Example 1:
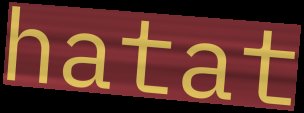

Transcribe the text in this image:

hatat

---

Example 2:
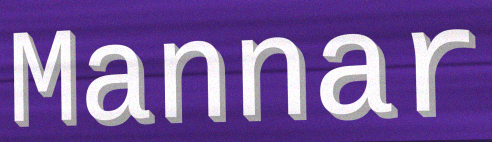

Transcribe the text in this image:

Mannar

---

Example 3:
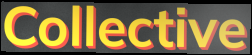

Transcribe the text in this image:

Collective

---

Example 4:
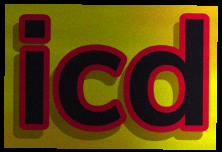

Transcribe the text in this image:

icd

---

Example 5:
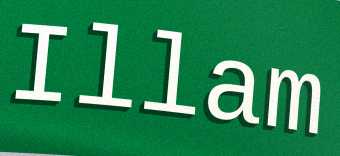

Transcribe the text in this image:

Illam